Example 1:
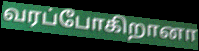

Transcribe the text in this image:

வரப்போகிறானா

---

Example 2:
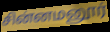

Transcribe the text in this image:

சின்னமனூர்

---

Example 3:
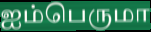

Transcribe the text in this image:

ஐம்பெருமா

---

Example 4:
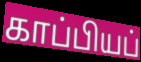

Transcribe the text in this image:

காப்பியப்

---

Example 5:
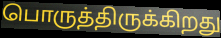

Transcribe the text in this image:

பொருத்திருக்கிறது